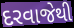
દરવાજેથી